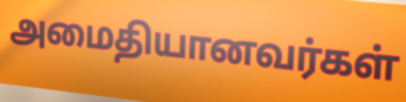
அமைதியானவர்கள்